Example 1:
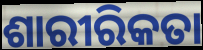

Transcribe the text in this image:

ଶାରୀରିକତା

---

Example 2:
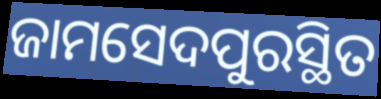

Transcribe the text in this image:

ଜାମସେଦପୁରସ୍ଥିତ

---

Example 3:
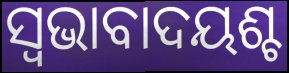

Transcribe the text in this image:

ସ୍ଵଭାବାଦୟଶ୍ଚ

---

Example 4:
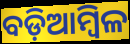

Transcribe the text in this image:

ବଡ଼ିଆମ୍ବିଳ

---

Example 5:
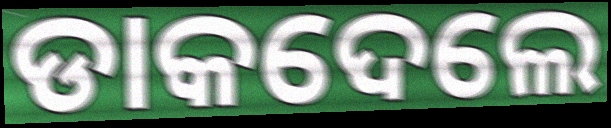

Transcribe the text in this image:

ଡାକଦେଲେ